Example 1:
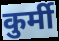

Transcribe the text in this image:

कुर्मी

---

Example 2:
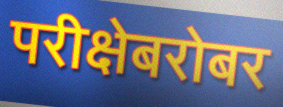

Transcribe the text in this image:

परीक्षेबरोबर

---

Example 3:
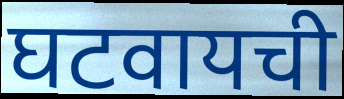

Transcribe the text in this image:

घटवायची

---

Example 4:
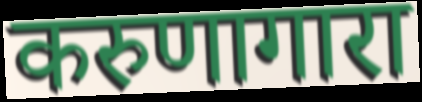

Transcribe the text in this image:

करुणागारा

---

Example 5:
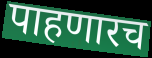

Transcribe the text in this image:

पाहणारच